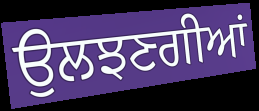
ਉਲਝਣਗੀਆਂ